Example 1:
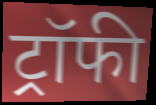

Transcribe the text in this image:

ट्रॉफी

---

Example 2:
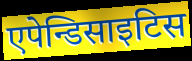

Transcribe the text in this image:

एपेन्डिसाइटिस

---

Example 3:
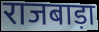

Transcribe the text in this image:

राजबाड़ा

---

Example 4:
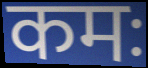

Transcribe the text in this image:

कमः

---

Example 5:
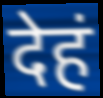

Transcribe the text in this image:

देहं